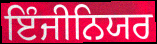
ਇੰਜੀਨਿਯਰ